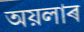
অয়লাৰ